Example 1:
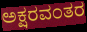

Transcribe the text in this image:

ಅಕ್ಷರವಂತರ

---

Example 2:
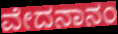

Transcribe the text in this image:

ವೇದನಾನಂ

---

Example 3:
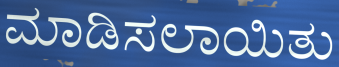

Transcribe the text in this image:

ಮಾಡಿಸಲಾಯಿತು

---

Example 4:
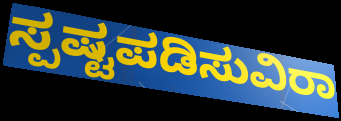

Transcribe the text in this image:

ಸ್ಪಷ್ಟಪಡಿಸುವಿರಾ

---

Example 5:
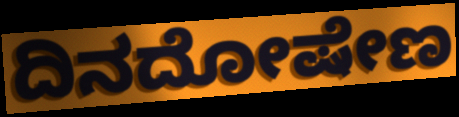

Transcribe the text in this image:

ದಿನದೋಷೇಣ